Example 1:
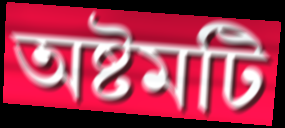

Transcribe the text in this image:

অষ্টমটি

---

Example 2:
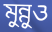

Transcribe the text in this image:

মুন্নুও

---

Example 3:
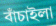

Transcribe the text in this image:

বাঁচাইলা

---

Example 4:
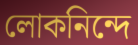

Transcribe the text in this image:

লোকনিন্দে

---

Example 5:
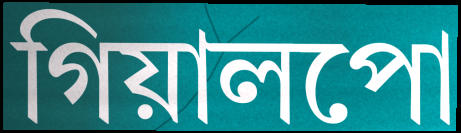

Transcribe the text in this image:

গিয়ালপো